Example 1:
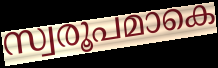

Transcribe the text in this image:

സ്വരൂപമാകെ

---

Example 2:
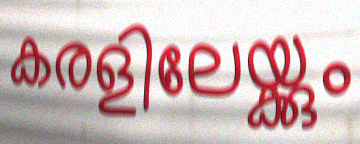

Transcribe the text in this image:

കരളിലേയ്ക്കും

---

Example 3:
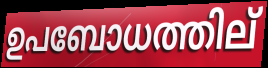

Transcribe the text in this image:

ഉപബോധത്തില്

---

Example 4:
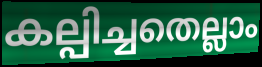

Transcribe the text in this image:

കല്പിച്ചതെല്ലാം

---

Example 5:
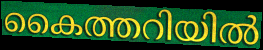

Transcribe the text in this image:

കൈത്തറിയിൽ